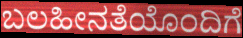
ಬಲಹೀನತೆಯೊಂದಿಗೆ